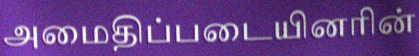
அமைதிப்படையினரின்